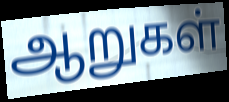
ஆறுகள்